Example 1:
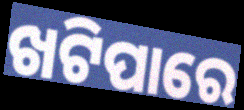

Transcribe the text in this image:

ଖଟିପାରେ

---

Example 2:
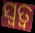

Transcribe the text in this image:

ସ୍ୱତ୍ୱ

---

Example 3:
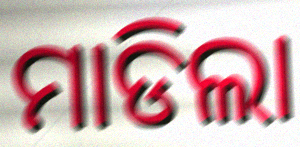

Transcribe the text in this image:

ମାଡିଲା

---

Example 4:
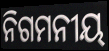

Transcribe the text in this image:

ନିଗମନୀୟ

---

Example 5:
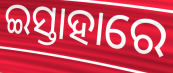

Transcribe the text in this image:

ଇସ୍ତାହାରେ